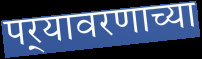
पर्यावरणाच्या